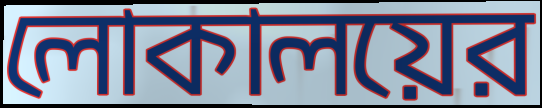
লোকালয়ের